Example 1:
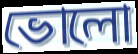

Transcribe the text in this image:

ভোলো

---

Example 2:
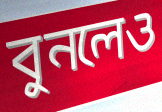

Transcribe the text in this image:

বুনলেও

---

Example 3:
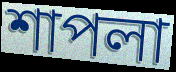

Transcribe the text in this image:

শাপলা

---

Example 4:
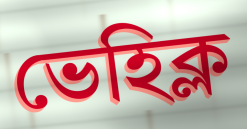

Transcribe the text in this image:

ভেহিক্ল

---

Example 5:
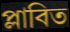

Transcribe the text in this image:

প্লাবিত